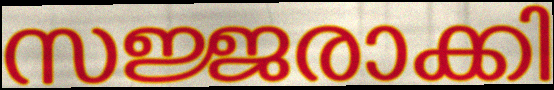
സജ്ജരാക്കി